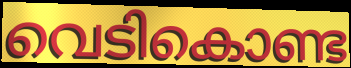
വെടികൊണ്ട